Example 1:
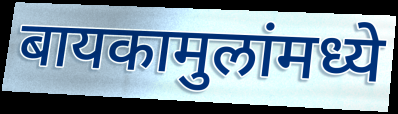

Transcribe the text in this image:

बायकामुलांमध्ये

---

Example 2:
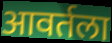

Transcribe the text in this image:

आवर्तला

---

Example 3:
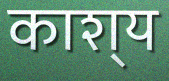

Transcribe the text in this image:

काश्य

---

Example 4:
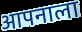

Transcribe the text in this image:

आपनाला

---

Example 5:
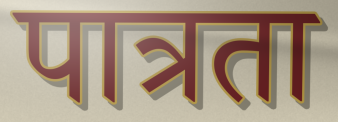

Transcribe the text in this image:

पात्रता